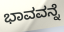
ಭಾವವನ್ನೆ